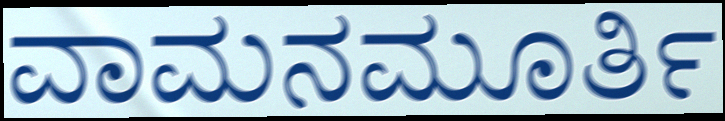
ವಾಮನಮೂರ್ತಿ